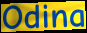
Odina